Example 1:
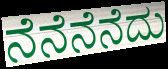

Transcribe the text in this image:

ನೆನೆನೆನೆದು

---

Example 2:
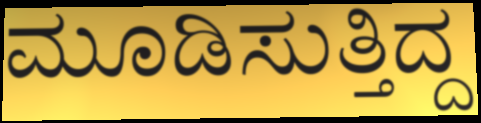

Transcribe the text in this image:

ಮೂಡಿಸುತ್ತಿದ್ದ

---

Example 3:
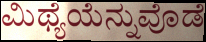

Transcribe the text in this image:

ಮಿಥ್ಯೆಯೆನ್ನುವೊಡೆ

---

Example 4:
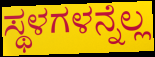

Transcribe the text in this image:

ಸ್ಥಳಗಳನ್ನೆಲ್ಲ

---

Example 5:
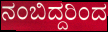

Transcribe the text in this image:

ನಂಬಿದ್ದರಿಂದ